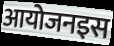
आयोजनइस